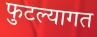
फुटल्यागत